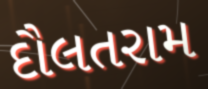
દૌલતરામ